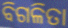
ବିଗଳିତା